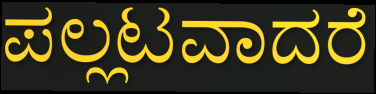
ಪಲ್ಲಟವಾದರೆ